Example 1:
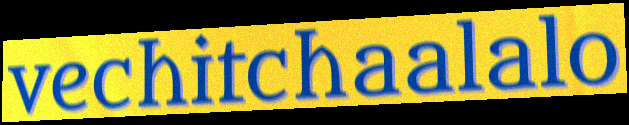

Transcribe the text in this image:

vechitchaalalo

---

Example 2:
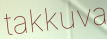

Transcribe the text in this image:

takkuva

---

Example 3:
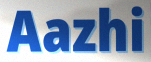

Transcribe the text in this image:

Aazhi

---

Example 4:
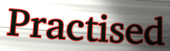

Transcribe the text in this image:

Practised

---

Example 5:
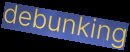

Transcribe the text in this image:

debunking